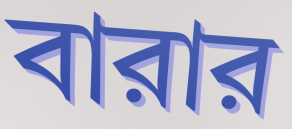
বারার